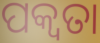
ପକ୍ୱତା